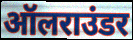
ऑलराउंडर